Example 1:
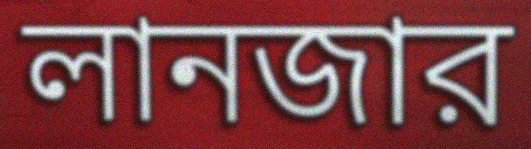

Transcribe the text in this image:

লানজার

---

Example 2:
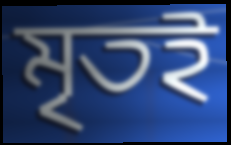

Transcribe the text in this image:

মৃতই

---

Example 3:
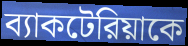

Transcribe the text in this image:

ব্যাকটেরিয়াকে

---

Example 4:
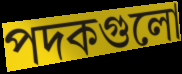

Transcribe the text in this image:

পদকগুলো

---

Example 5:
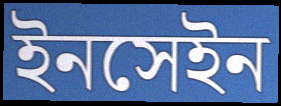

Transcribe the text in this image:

ইনসেইন